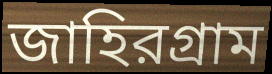
জাহিরগ্রাম